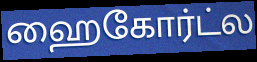
ஹைகோர்ட்ல